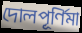
দোলপূর্ণিমা